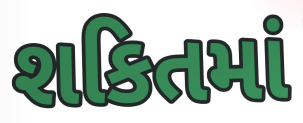
શકિતમાં